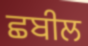
ਛਬੀਲ